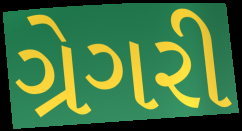
ગ્રેગરી